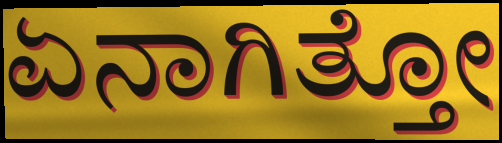
ಏನಾಗಿತ್ತೋ